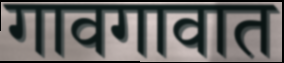
गावगावात